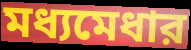
মধ্যমেধার